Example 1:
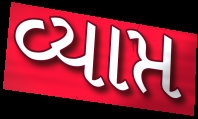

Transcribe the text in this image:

વ્યાપ્ત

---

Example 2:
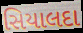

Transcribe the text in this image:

સિયાલદા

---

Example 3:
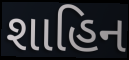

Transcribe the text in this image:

શાહિન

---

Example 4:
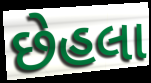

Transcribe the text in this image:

છેહલા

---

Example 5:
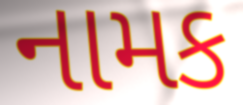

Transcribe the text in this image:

નામક